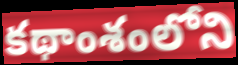
కథాంశంలోని